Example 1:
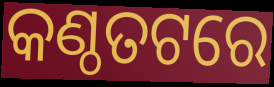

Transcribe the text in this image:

କଣ୍ଠତଟରେ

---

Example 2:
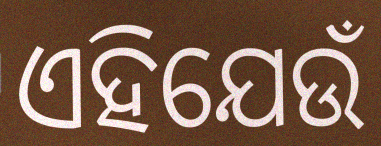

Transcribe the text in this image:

ଏହିଯେଉଁ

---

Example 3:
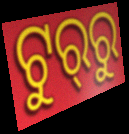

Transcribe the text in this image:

ଟୁର୍‍ରୁ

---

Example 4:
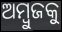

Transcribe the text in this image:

ଅମ୍ବୁଜକୁ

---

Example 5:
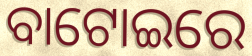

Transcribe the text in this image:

ବାଟୋଇରେ